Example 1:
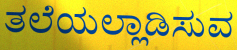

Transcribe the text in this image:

ತಲೆಯಲ್ಲಾಡಿಸುವ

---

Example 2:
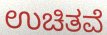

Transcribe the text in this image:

ಉಚಿತವೆ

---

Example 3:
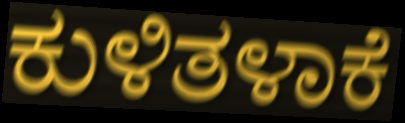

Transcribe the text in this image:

ಕುಳಿತಳಾಕೆ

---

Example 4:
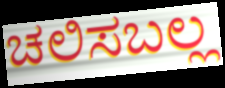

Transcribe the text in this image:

ಚಲಿಸಬಲ್ಲ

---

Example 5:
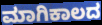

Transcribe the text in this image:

ಮಾಗಿಕಾಲದ